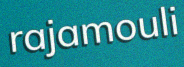
rajamouli